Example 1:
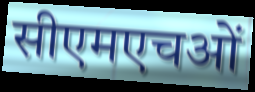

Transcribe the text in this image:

सीएमएचओं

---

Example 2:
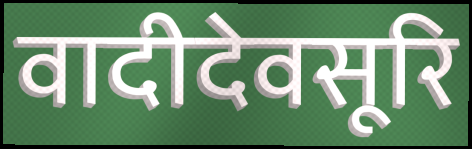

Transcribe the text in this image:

वादीदेवसूरि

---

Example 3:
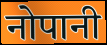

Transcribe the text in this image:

नोपानी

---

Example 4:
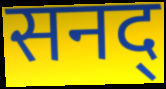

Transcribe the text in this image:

सनद्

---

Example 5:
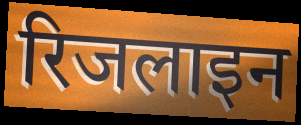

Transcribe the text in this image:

रिजलाइन